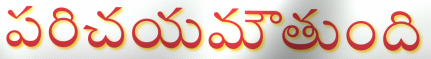
పరిచయమౌతుంది